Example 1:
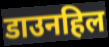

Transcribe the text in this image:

डाउनहिल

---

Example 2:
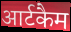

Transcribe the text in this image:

आर्टकैम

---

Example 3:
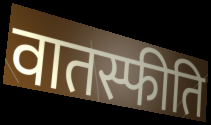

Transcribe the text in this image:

वातस्फीति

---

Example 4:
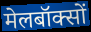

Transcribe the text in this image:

मेलबॉक्सों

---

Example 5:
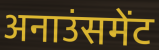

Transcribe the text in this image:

अनाउंसमेंट